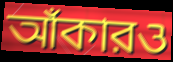
আঁকারও